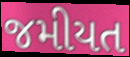
જમીયત